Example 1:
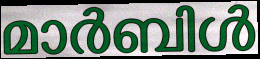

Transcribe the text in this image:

മാർബിൾ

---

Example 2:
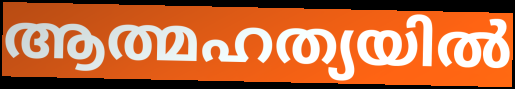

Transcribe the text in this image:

ആത്മഹത്യയിൽ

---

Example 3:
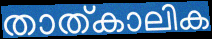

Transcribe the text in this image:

താത്കാലിക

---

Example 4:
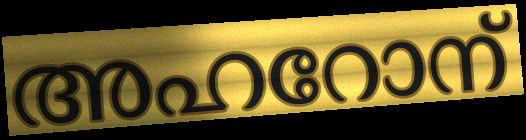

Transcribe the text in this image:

അഹറോന്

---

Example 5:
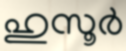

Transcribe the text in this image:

ഹുസൂർ